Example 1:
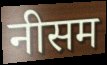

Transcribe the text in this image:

नीसम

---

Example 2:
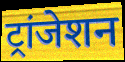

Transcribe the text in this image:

ट्रांजेशन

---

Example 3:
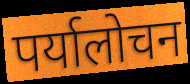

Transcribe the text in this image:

पर्यालोचन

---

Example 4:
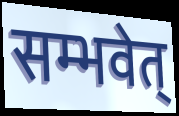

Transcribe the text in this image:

सम्भवेत्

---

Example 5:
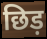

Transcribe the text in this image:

छिड़